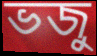
ভজু